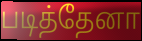
படித்தேனா